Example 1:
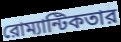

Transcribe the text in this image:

রোম্যান্টিকতার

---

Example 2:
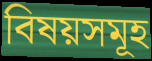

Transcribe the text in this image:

বিষয়সমূহ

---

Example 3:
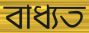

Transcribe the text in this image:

বাধ্যত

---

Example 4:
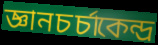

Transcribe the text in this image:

জ্ঞানচর্চাকেন্দ্র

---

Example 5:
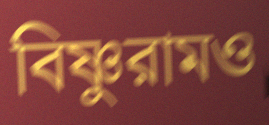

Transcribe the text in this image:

বিষ্ণুরামও